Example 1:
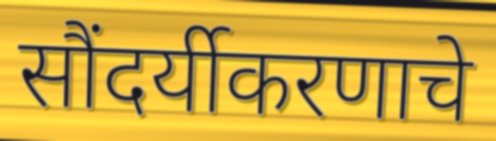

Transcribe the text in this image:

सौंदर्यीकरणाचे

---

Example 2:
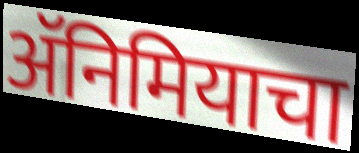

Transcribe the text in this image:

ॲनिमियाचा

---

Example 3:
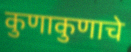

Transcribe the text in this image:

कुणाकुणाचे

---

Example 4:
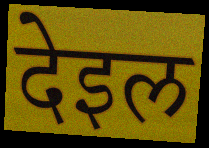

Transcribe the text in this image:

देइल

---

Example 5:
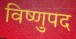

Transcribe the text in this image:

विष्णुपद